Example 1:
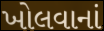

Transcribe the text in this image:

ખોલવાનાં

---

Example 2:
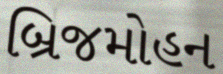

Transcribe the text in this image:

બ્રિજમોહન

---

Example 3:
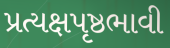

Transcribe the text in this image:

પ્રત્યક્ષપૃષ્ઠભાવી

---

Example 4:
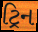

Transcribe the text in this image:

ટ્રિન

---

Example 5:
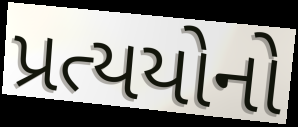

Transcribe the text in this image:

પ્રત્યયોનો